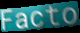
Facto